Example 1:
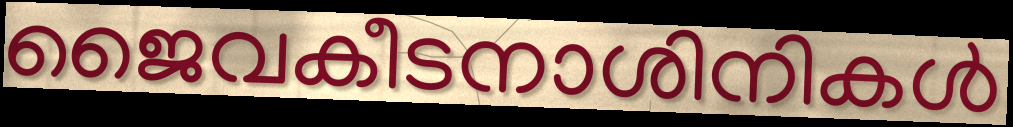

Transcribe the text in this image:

ജൈവകീടനാശിനികൾ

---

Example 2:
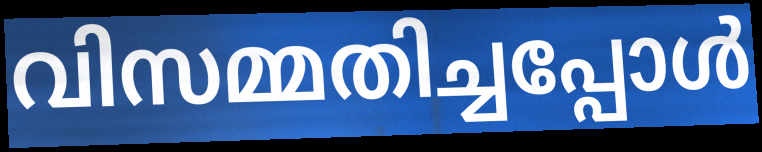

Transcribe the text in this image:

വിസമ്മതിച്ചപ്പോൾ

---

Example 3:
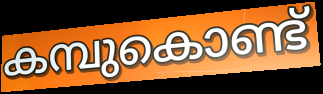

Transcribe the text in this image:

കമ്പുകൊണ്ട്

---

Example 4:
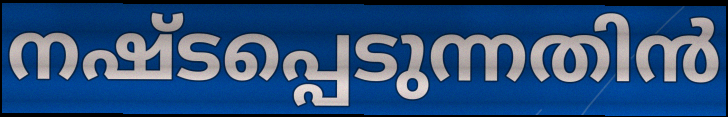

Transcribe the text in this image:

നഷ്ടപ്പെടുന്നതിൻ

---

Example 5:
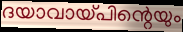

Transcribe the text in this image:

ദയാവായ്പിന്റെയും